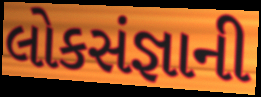
લોકસંજ્ઞાની